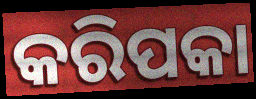
କରିପକା